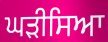
ਘੜੀਸਿਆ